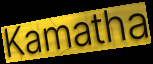
Kamatha